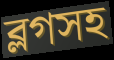
ব্লগসহ